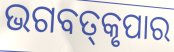
ଭଗବତ୍‌କୃପାର